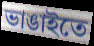
ভাঙাইতে